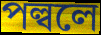
পল্বলে